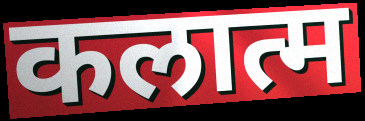
कलात्म